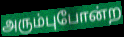
அரும்புபோன்ற